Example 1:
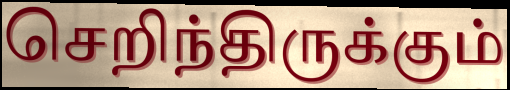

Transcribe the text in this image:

செறிந்திருக்கும்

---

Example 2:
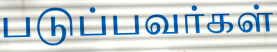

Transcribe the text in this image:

படுப்பவர்கள்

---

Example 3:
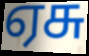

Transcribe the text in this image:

ஏசு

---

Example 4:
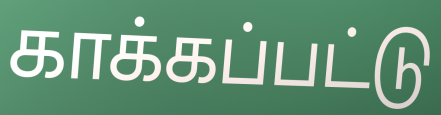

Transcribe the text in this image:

காக்கப்பட்டு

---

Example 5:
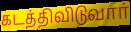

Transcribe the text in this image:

கடத்திவிடுவார்